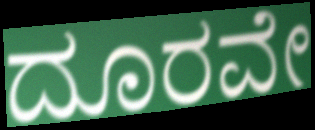
ದೂರವೇ